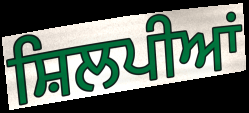
ਸ਼ਿਲਪੀਆਂ